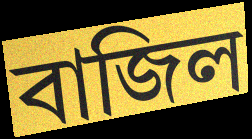
বাজিল